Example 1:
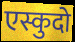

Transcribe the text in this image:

एस्कुदो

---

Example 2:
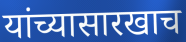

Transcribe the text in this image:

यांच्यासारखाच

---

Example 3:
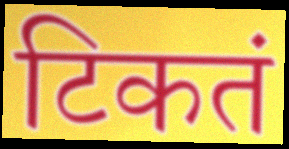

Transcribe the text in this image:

टिकतं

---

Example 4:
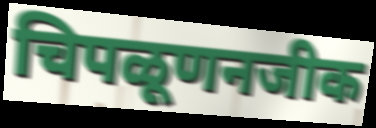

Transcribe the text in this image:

चिपळूणनजीक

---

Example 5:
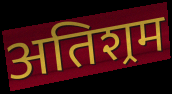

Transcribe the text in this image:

अतिश्रम